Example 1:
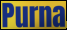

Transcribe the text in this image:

Purna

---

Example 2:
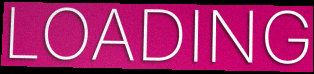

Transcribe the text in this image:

LOADING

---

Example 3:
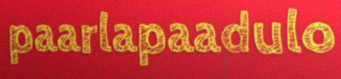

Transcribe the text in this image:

paarlapaadulo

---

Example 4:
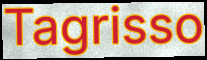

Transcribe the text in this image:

Tagrisso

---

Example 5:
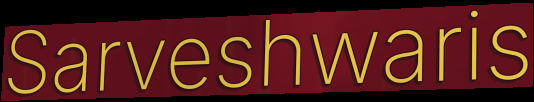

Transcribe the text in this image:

Sarveshwaris